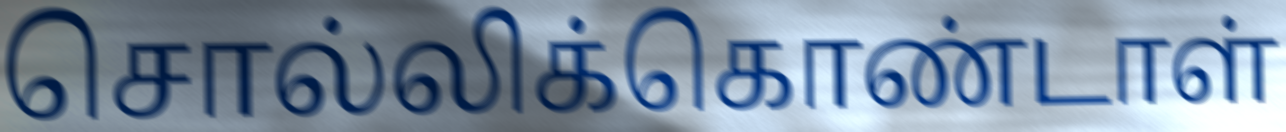
சொல்லிக்கொண்டாள்